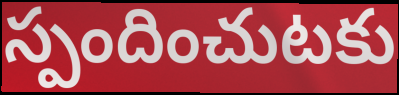
స్పందించుటకు